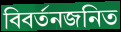
বিবর্তনজনিত